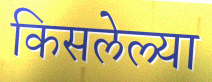
किसलेल्या